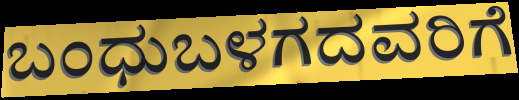
ಬಂಧುಬಳಗದವರಿಗೆ